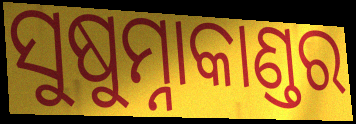
ସୁଷୁମ୍ନାକାଣ୍ଡର